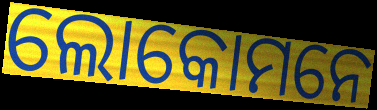
ଲୋକୋମନେ